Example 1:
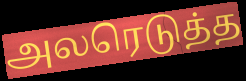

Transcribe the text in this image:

அலரெடுத்த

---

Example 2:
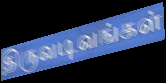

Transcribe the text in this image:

திருவடிவங்கள்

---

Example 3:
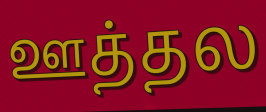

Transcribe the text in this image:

ஊத்தல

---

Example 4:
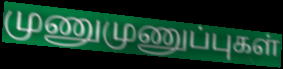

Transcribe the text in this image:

முணுமுணுப்புகள்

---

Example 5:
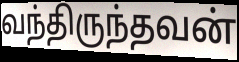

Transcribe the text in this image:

வந்திருந்தவன்